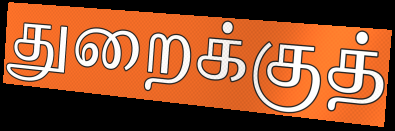
துறைக்குத்